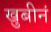
खुबीनं